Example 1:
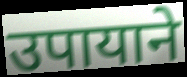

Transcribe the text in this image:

उपायाने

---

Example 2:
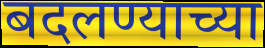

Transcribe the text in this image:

बदलण्याच्या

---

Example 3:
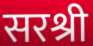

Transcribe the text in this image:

सरश्री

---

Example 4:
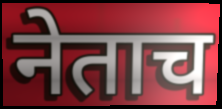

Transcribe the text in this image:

नेताच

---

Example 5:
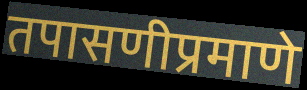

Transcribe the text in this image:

तपासणीप्रमाणे